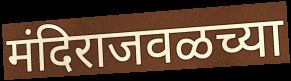
मंदिराजवळच्या